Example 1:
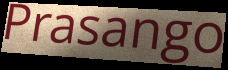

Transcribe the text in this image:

Prasango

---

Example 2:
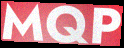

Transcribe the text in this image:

MQP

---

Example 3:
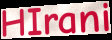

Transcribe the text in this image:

HIrani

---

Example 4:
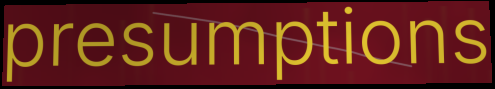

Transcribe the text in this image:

presumptions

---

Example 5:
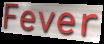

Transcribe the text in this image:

Fever